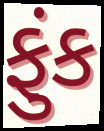
ફુંક